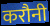
करौनी